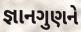
જ્ઞાનગુણને